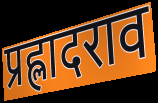
प्रह्लादराव